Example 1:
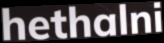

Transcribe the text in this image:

hethalni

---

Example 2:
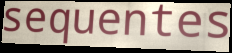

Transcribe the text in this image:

sequentes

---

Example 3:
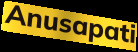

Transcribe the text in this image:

Anusapati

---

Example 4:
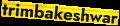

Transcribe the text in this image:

trimbakeshwar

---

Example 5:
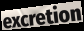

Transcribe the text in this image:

excretion